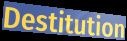
Destitution